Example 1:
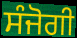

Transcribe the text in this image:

ਸੰਜੋਗੀ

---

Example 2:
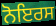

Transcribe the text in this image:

ਨੋਇਰਸ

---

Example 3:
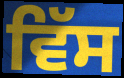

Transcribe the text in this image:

ਵਿੱਸ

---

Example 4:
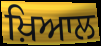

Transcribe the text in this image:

ਖ਼ਿਆਲ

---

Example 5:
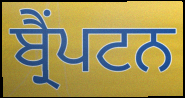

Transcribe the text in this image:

ਬ੍ਰੈਂਪਟਨ